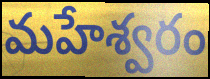
మహేశ్వరం